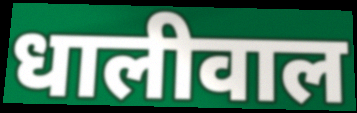
धालीवाल